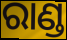
ରାଣ୍ଡ